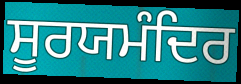
ਸੂਰਯਮੰਦਿਰ